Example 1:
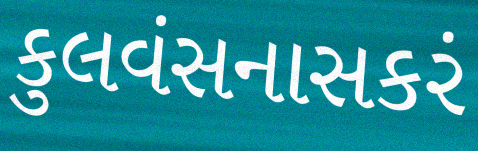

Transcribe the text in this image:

કુલવંસનાસકરં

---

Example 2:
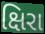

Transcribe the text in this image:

ક્ષિરા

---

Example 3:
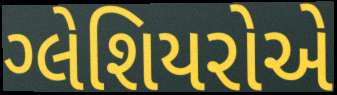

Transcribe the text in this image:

ગ્લેશિયરોએ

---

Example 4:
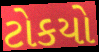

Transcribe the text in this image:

ટોકયો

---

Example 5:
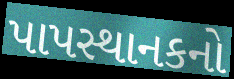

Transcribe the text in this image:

પાપસ્થાનકનો